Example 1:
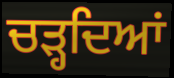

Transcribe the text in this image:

ਚੜ੍ਹਦਿਆਂ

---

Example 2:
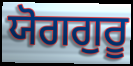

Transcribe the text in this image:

ਯੋਗਗੁਰੂ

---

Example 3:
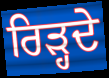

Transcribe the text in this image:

ਰਿੜ੍ਹਦੇ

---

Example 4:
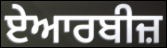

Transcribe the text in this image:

ਏਆਰਬੀਜ਼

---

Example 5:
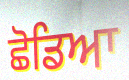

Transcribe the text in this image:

ਛੋਡਿਆ